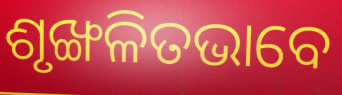
ଶୃଙ୍ଖଳିତଭାବେ